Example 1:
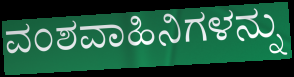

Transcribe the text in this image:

ವಂಶವಾಹಿನಿಗಳನ್ನು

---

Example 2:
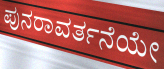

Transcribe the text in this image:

ಪುನರಾವರ್ತನೆಯೇ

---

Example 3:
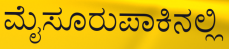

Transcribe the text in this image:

ಮೈಸೂರುಪಾಕಿನಲ್ಲಿ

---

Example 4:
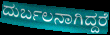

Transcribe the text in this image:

ದುರ್ಬಲನಾಗಿದ್ದರೆ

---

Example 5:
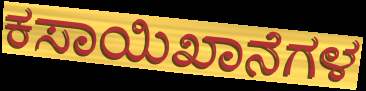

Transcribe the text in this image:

ಕಸಾಯಿಖಾನೆಗಳ